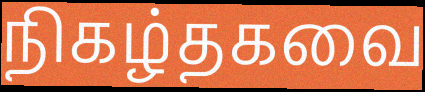
நிகழ்தகவை